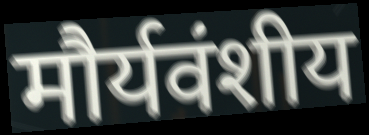
मौर्यवंशीय